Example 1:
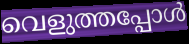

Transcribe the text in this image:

വെളുത്തപ്പോൾ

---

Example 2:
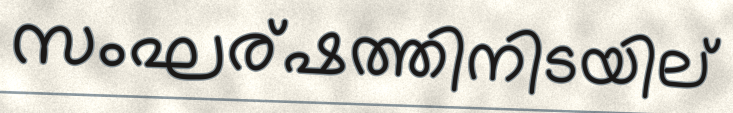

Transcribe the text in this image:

സംഘര്ഷത്തിനിടയില്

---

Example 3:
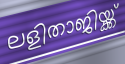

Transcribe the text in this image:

ലളിതാജിയ്ക്ക്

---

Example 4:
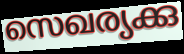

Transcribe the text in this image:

സെഖര്യക്കു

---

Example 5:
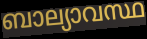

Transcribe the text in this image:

ബാല്യാവസ്ഥ